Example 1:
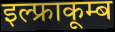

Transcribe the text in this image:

इल्फ्राकूम्ब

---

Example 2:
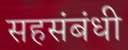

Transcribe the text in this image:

सहसंबंधी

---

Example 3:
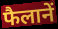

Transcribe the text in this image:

फैलानें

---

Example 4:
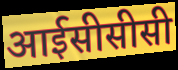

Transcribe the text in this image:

आईसीसीसी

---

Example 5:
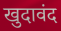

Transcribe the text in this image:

खुदावंद